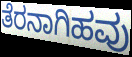
ತೆರನಾಗಿಹವು